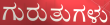
ಗುರುತುಗಳು